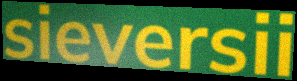
sieversii